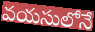
వయసులోనే